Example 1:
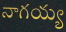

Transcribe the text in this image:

నాగయ్య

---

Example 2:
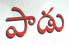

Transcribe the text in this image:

పాడు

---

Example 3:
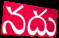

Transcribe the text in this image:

నదు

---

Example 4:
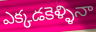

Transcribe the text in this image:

ఎక్కడకెళ్ళినా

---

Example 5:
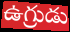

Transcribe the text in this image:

ఉగ్రుడు